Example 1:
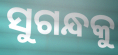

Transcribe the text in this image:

ସୁଗନ୍ଧକୁ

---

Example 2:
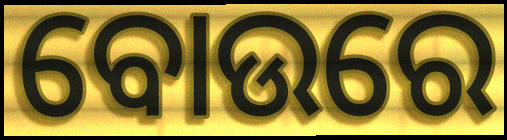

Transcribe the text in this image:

ବୋଉରେ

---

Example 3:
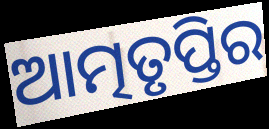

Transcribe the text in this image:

ଆତ୍ମତୃପ୍ତିର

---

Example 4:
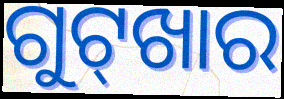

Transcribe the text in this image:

ଗୁଟ୍‌ଖାର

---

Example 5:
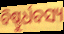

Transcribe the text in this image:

ବିଷ୍ଣୁର୍ଧବସ୍ୟ